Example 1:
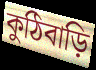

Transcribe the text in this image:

কুঠিবাড়ি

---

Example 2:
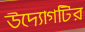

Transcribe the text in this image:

উদ্যোগটির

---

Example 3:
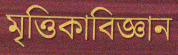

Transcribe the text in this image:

মৃত্তিকাবিজ্ঞান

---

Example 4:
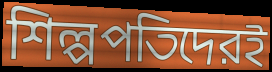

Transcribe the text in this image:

শিল্পপতিদেরই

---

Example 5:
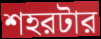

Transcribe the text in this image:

শহরটার